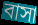
বাসা